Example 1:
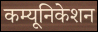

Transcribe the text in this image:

कम्यूनिकेशन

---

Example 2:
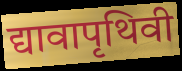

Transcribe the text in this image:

द्यावापृथिवी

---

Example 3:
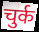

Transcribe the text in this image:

चुर्क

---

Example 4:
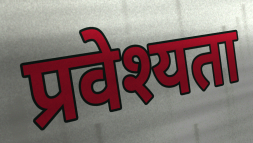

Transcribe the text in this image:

प्रवेश्यता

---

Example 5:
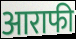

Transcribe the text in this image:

आराफी